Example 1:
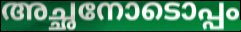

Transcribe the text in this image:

അച്ഛനോടൊപ്പം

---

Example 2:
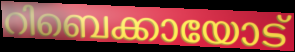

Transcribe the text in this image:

റിബെക്കായോട്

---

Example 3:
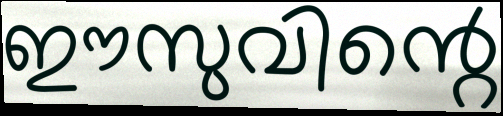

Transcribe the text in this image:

ഈസുവിന്റെ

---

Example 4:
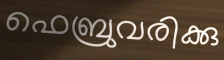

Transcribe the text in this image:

ഫെബ്രുവരിക്കു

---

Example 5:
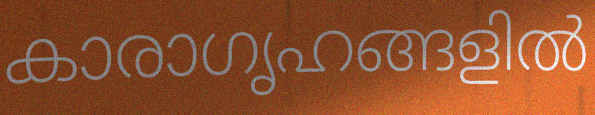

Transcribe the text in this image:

കാരാഗൃഹങ്ങളിൽ